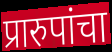
प्रारुपांचा